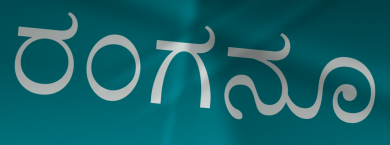
ರಂಗನೂ